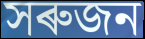
সৰুজন